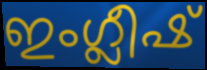
ഇംഗ്ലീഷ്